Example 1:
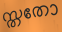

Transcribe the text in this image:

സ്തതോ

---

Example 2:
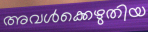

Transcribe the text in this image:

അവൾക്കെഴുതിയ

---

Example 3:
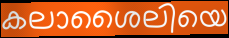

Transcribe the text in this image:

കലാശൈലിയെ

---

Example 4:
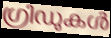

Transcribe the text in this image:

ഗ്രിഡുകൾ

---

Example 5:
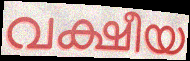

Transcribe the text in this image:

വക്ഷീയ